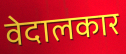
वेदालकार